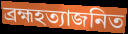
ব্রহ্মহত্যাজনিত